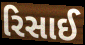
રિસાઈ